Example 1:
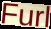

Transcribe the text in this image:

Furl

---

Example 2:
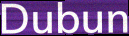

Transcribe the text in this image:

Dubun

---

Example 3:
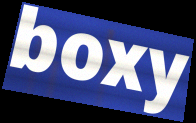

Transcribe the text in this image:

boxy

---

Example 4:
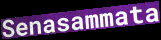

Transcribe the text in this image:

Senasammata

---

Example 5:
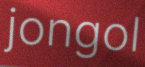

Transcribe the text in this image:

jongol